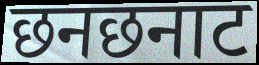
छनछनाट